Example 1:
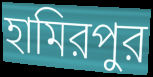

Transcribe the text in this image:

হামিরপুর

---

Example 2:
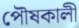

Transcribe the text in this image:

পৌষকালী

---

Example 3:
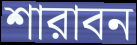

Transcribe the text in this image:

শারাবন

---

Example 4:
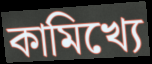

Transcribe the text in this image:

কামিখ্যে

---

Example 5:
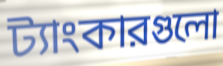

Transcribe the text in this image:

ট্যাংকারগুলো